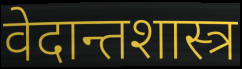
वेदान्तशास्त्र